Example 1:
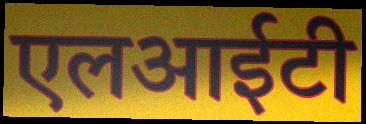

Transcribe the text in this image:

एलआईटी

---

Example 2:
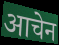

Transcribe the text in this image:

आचेन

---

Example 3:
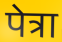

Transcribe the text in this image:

पेत्रा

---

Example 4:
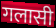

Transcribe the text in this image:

गलासी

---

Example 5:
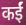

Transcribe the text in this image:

कईं